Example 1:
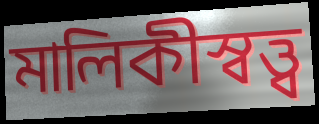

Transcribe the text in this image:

মালিকীস্বত্ত্ব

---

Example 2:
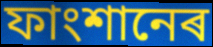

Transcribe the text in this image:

ফাংশানেৰ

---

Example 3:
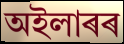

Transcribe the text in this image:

অইলাৰৰ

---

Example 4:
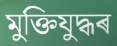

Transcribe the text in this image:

মুক্তিযুদ্ধৰ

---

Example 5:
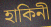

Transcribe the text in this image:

হাকিনী